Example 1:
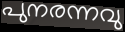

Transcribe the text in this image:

പുനരന്നവു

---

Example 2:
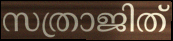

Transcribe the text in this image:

സത്രാജിത്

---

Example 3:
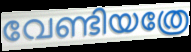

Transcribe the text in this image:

വേണ്ടിയത്രേ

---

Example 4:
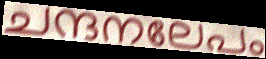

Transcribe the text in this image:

ചന്ദനലേപം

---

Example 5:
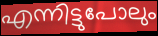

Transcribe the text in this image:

എന്നിട്ടുപോലും